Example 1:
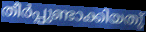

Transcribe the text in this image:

തീർപ്പുണ്ടാക്കിയതു്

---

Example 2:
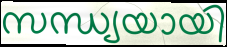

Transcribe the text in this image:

സന്ധ്യയായി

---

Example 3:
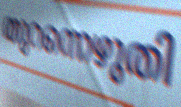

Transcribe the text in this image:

തുറന്നെഴുതി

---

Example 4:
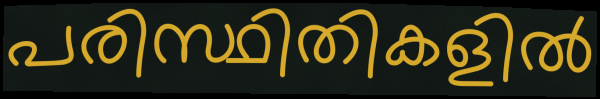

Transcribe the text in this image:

പരിസ്ഥിതികളിൽ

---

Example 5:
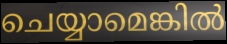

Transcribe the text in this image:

ചെയ്യാമെങ്കിൽ